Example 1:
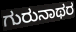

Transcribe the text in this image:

ಗುರುನಾಥರ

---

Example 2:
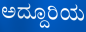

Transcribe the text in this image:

ಅದ್ದೂರಿಯ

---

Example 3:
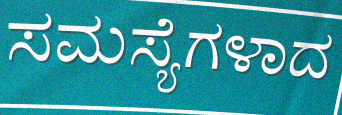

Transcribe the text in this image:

ಸಮಸ್ಯೆಗಳಾದ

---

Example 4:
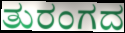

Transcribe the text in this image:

ತುರಂಗದ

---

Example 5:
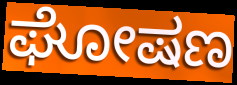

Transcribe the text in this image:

ಘೋಷಣ